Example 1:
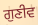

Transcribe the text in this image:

ਗੁਣੀਵ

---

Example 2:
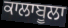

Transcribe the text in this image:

ਕਾਲਾਬੂਲਾ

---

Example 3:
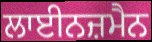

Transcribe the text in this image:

ਲਾਈਨਜ਼ਮੈਨ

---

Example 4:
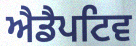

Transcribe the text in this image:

ਐਡੈਪਟਿਵ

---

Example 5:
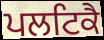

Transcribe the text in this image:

ਪਲਟਿਕੈ